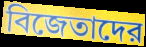
বিজেতাদের